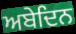
ਅਬੇਦਿਨ